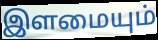
இளமையும்